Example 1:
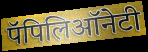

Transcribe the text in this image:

पॅपिलिऑनेटी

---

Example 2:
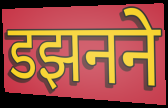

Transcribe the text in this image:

डझनने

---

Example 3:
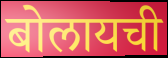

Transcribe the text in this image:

बोलायची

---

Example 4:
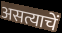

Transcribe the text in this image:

असत्याचें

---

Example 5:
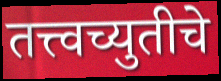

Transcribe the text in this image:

तत्त्वच्युतीचे